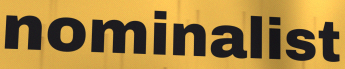
nominalist